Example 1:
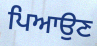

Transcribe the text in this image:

ਪਿਆਉਣ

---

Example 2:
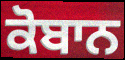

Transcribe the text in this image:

ਕੋਬਾਨ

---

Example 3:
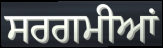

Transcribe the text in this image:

ਸਰਗਮੀਆਂ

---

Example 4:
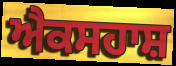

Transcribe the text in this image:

ਐਕਸਹਾਸ਼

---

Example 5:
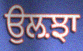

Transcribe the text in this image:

ਉਲ਼ਝਾ